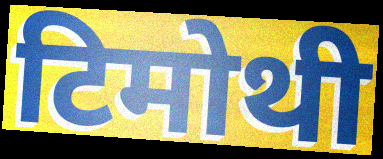
टिमोथी